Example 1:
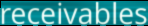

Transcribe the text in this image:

receivables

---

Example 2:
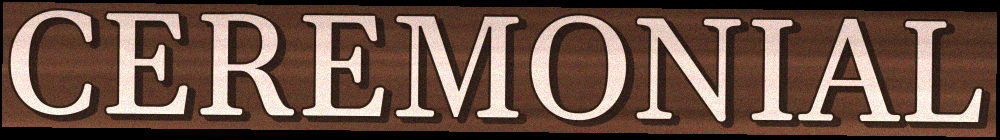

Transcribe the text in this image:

CEREMONIAL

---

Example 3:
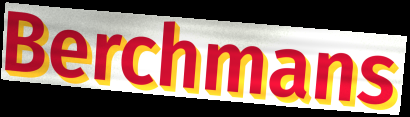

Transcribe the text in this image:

Berchmans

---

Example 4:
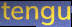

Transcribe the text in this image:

tengu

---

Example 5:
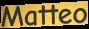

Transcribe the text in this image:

Matteo